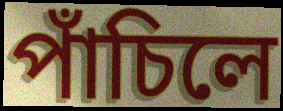
পাঁচিলে